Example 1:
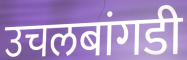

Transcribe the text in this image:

उचलबांगडी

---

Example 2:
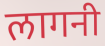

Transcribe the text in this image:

लागनी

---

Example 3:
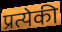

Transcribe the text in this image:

प्रत्येकी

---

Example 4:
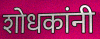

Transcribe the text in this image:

शोधकांनी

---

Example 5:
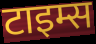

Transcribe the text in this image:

टाइम्स